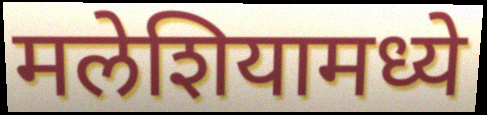
मलेशियामध्ये